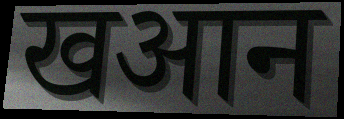
खआन